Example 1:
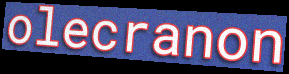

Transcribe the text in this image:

olecranon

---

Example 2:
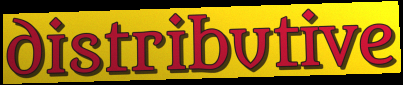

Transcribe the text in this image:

distributive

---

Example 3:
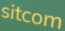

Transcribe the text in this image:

sitcom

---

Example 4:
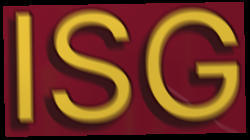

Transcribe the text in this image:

ISG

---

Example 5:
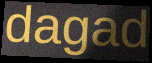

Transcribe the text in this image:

dagad